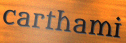
carthami